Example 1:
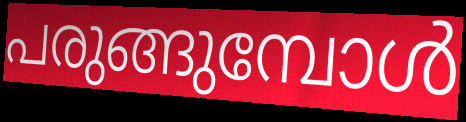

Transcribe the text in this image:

പരുങ്ങുമ്പോൾ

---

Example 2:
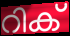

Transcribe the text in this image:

റിക്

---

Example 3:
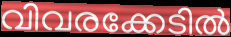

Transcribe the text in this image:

വിവരക്കേടിൽ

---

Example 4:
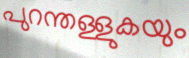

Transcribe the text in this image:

പുറന്തള്ളുകയും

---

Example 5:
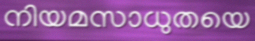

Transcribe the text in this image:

നിയമസാധുതയെ